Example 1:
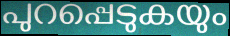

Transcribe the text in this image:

പുറപ്പെടുകയും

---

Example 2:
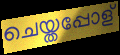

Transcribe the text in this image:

ചെയ്തപ്പോള്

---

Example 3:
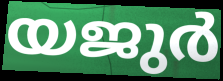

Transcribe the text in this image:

യജുർ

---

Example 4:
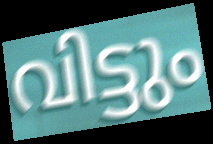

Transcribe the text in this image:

വിട്ടും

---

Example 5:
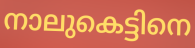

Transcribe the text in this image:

നാലുകെട്ടിനെ